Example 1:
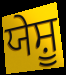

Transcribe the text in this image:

ਯੇਸ਼ੂ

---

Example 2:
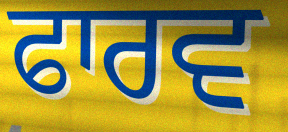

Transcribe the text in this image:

ਫਾਰਵ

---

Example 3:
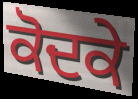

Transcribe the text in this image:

ਕੋਦਕੇ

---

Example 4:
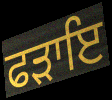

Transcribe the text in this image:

ਫੜਾਇ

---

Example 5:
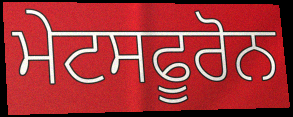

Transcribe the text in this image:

ਮੇਟਸਫੂਰੋਨ